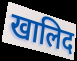
खालिद